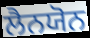
ਲੈਨਯੋਨ